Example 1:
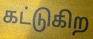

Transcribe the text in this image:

கட்டுகிற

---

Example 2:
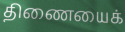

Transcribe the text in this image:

திணையைக்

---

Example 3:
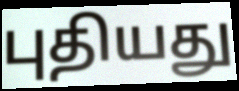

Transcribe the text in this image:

புதியது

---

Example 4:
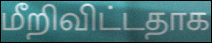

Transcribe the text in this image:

மீறிவிட்டதாக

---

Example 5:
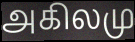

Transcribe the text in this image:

அகிலமு